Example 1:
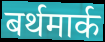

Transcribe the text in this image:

बर्थमार्क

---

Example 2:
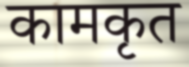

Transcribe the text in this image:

कामकृत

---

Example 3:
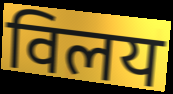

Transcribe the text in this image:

विलय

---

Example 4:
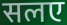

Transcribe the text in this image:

सलए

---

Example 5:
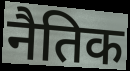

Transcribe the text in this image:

नैतिक